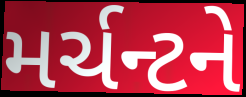
મર્ચન્ટને